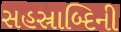
સહસ્રાબ્દિની